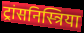
ट्रांसनिस्त्रिया